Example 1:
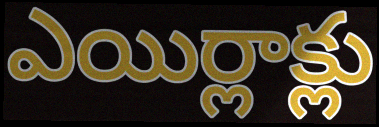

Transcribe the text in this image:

ఎయిర్లాక్లు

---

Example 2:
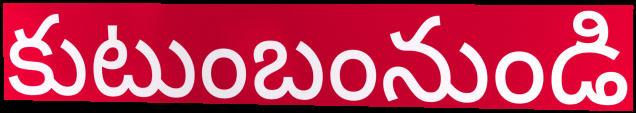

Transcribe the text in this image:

కుటుంబంనుండి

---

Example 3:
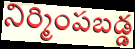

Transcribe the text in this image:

నిర్మింపబడ్డ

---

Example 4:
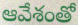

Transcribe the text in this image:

ఆవేశంతో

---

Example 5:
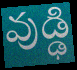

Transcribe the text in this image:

వుడ్ఢి